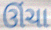
ઊંચા